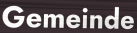
Gemeinde